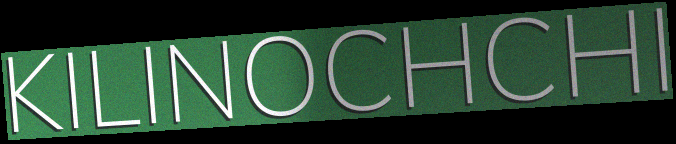
KILINOCHCHI